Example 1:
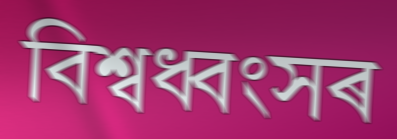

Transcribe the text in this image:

বিশ্বধ্বংসৰ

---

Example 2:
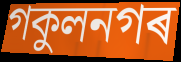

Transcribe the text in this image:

গকুলনগৰ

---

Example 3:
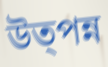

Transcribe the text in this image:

উত্পন্ন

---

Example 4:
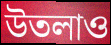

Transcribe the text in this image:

উতলাও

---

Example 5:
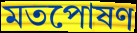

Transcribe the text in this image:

মতপোষণ